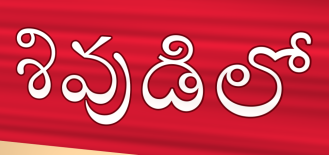
శివుడిలో